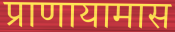
प्राणायामास